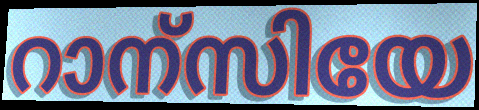
റാന്സിയേ